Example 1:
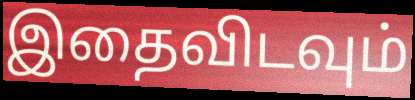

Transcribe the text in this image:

இதைவிடவும்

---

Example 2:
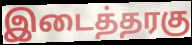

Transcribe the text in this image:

இடைத்தரகு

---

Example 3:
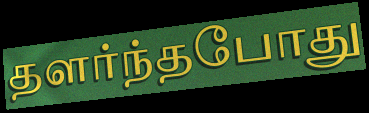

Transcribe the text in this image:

தளர்ந்தபோது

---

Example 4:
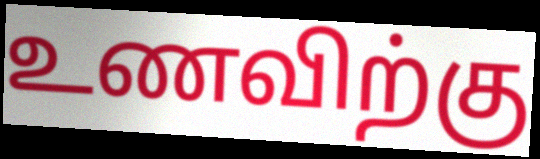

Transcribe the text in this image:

உணவிற்கு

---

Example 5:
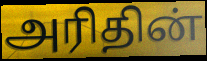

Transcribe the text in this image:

அரிதின்